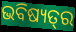
ଭବିଷ୍ୟତ୍‌ର